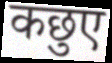
कछुए